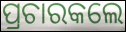
ପ୍ରଚାରକଲେ